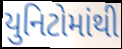
યુનિટોમાંથી